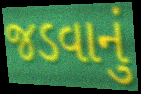
જડવાનું